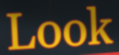
Look